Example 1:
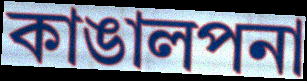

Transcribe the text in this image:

কাঙালপনা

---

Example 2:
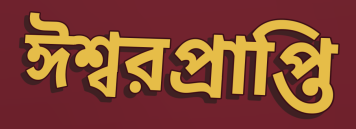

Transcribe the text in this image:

ঈশ্বরপ্রাপ্তি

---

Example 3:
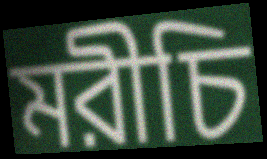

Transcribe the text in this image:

মরীচি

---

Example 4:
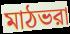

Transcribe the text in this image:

মাঠভরা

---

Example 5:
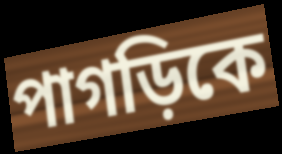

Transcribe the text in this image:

পাগড়িকে